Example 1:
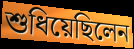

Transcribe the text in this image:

শুধিয়েছিলেন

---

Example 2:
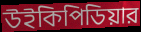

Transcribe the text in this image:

উইকিপিডিয়ার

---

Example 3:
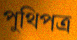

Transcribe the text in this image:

পুথিপত্র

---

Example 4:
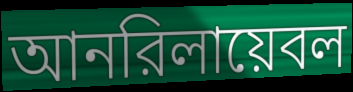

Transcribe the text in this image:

আনরিলায়েবল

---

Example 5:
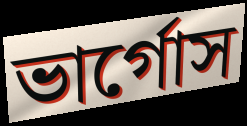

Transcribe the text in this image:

ভার্গোস